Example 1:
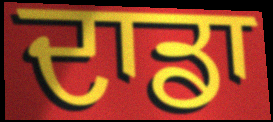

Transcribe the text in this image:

ਦਾਡਾ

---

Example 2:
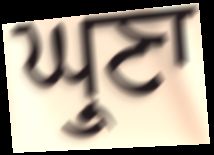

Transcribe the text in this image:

ਘ੍ਰੁਣਾ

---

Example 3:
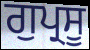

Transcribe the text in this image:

ਗੁਪ੍ਰਸੂ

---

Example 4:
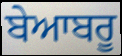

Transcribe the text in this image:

ਬੇਆਬਰੂ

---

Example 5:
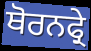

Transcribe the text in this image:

ਥੋਰਨਫ੍ਰੇ